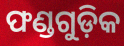
ଫଣ୍ଡଗୁଡ଼ିକ